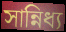
সান্নিধ্য